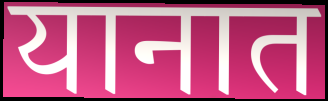
यानात